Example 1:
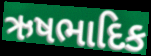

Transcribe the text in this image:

ઋષભાદિક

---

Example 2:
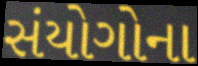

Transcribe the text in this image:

સંયોગોના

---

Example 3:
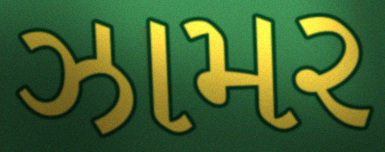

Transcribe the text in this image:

ઝામર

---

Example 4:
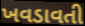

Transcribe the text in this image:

ખવડાવતી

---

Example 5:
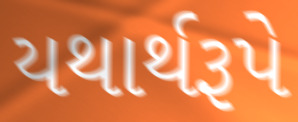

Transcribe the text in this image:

યથાર્થરૂપે